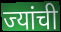
ज्यांची